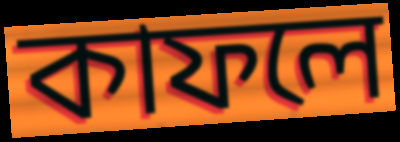
কাফলে